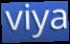
viya